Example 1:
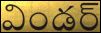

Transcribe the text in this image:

విండర్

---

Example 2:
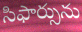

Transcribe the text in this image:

సిఫార్సును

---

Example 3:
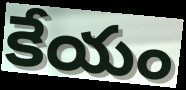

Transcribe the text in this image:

కేయం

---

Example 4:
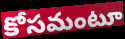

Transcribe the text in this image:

కోసమంటూ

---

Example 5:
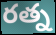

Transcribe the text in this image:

రత్న